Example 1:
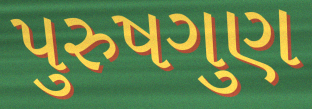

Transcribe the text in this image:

પુરુષગુણ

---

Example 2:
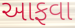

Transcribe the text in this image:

આફવા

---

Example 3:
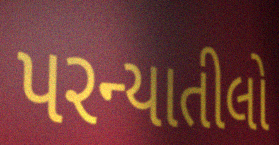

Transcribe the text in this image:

પરન્યાતીલો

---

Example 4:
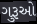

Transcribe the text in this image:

ગુરૂઓ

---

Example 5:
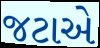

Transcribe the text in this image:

જટાએ